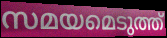
സമയമെടുത്ത്